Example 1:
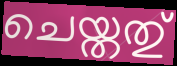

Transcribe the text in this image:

ചെയ്തതു്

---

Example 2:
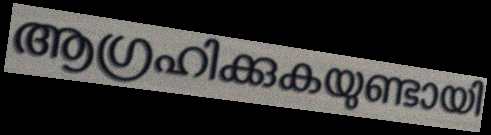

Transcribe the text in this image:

ആഗ്രഹിക്കുകയുണ്ടായി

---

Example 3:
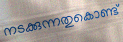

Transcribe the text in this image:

നടക്കുന്നതുകൊണ്ട്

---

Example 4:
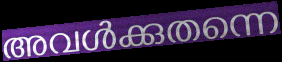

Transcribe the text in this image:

അവൾക്കുതന്നെ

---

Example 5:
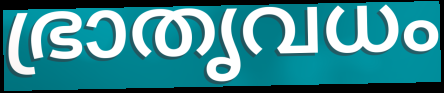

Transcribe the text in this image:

ഭ്രാതൃവധം